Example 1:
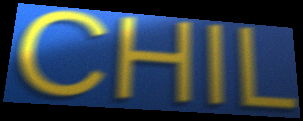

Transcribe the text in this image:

CHIL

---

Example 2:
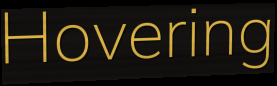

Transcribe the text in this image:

Hovering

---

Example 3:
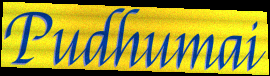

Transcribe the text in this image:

Pudhumai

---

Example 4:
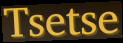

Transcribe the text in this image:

Tsetse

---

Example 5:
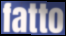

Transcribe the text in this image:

fatto